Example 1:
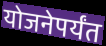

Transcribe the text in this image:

योजनेपर्यंत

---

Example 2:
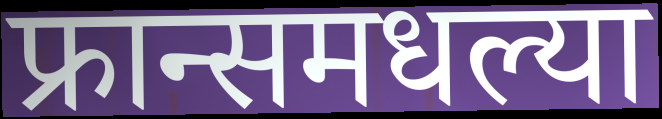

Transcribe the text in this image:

फ्रान्समधल्या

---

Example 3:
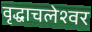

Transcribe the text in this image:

वृद्धाचलेश्वर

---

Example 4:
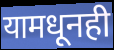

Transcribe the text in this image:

यामधूनही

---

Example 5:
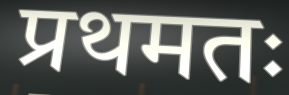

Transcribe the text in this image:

प्रथमतः